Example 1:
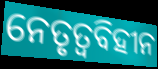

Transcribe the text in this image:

ନେତୃତ୍ୱବିହୀନ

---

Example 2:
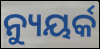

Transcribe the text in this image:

ନ୍ୟୁୟର୍କ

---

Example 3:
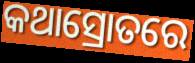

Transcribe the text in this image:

କଥାସ୍ରୋତରେ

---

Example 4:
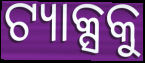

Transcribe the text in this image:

ଟ୍ୟାକ୍ସକୁ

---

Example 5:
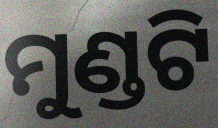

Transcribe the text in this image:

ମୁଣ୍ଡଟି